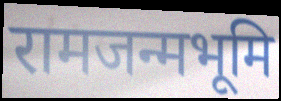
रामजन्मभूमि